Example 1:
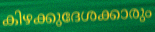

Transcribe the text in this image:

കിഴക്കുദേശക്കാരും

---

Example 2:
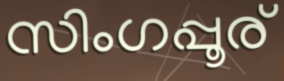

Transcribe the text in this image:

സിംഗപ്പൂര്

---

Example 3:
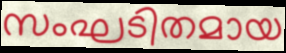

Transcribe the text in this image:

സംഘടിതമായ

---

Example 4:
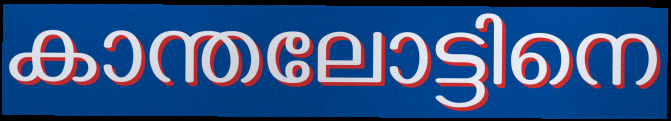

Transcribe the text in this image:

കാന്തലോട്ടിനെ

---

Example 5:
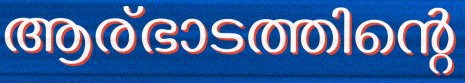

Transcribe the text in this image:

ആര്ഭാടത്തിന്റെ